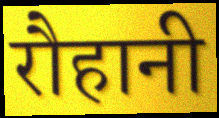
रौहानी